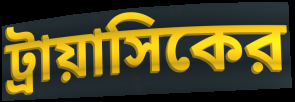
ট্রায়াসিকের